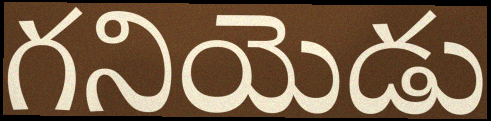
గనియెడు